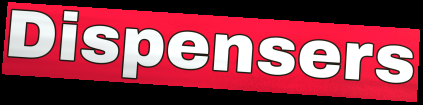
Dispensers